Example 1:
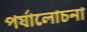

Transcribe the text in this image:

পর্যালোচনা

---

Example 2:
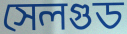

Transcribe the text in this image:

সেলগুড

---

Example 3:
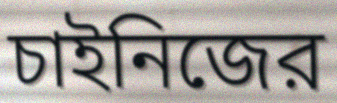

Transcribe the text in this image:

চাইনিজের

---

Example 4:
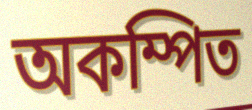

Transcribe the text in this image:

অকম্পিত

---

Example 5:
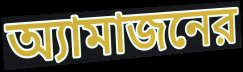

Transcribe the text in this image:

অ্যামাজনের